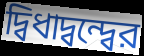
দ্বিধাদ্বন্দ্বের